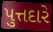
પુત્તદારે